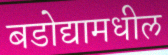
बडोद्यामधील